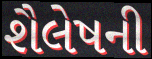
શૈલેષની